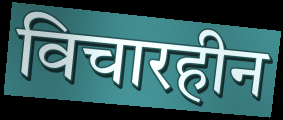
विचारहीन